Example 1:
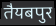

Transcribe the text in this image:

तैयबपुर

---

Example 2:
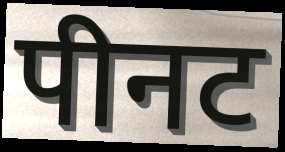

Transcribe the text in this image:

पीनट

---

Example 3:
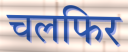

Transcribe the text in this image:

चलफिर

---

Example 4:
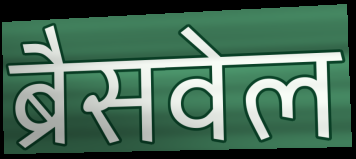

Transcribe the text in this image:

ब्रैसवेल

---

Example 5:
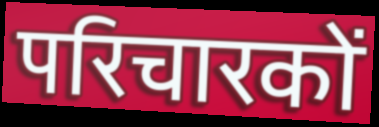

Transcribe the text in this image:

परिचारकों